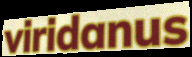
viridanus